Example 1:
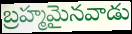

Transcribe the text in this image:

బ్రహ్మమైనవాడు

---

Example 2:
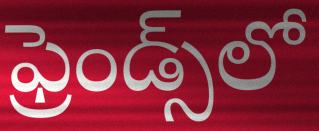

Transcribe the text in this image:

ఫ్రెండ్స్‌లో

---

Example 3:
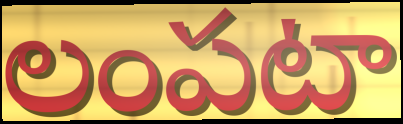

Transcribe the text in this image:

లంపటా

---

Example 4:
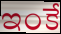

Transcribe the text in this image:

ఇంకే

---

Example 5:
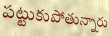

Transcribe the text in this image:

పట్టుకుపోతున్నారు